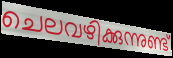
ചെലവഴിക്കുന്നുണ്ട്